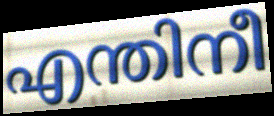
എന്തിനീ